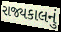
રાજ્યકાલનું